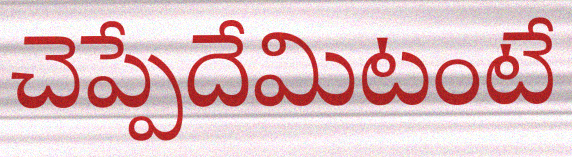
చెప్పేదేమిటంటే